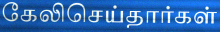
கேலிசெய்தார்கள்